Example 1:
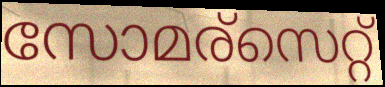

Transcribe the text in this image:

സോമര്സെറ്റ്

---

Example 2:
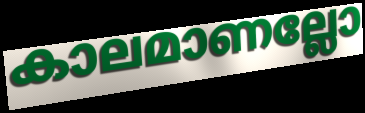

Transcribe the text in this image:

കാലമാണല്ലോ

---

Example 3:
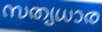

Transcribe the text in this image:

സത്യധാര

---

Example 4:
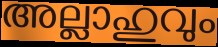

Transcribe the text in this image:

അല്ലാഹുവും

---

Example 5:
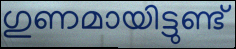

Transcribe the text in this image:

ഗുണമായിട്ടുണ്ട്